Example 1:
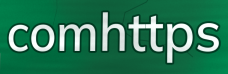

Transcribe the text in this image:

comhttps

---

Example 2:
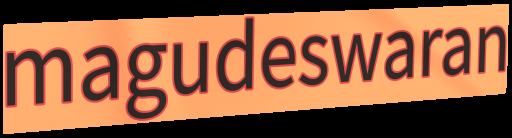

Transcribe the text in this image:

magudeswaran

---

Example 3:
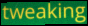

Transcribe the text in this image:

tweaking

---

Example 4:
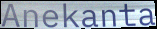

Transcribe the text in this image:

Anekanta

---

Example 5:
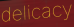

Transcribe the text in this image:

delicacy